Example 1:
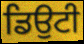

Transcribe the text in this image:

ਡਿਉਟੀ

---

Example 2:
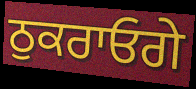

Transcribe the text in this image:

ਠੁਕਰਾਓਗੇ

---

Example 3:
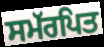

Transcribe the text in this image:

ਸਮੱਰਪਿਤ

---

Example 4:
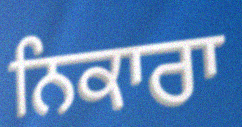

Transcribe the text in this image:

ਨਿਕਾਰਾ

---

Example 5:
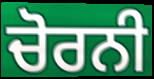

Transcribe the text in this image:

ਚੋਰਨੀ